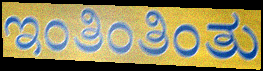
ಇಂತಿಂತಿಂತು